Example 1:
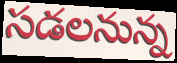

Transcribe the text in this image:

సడలనున్న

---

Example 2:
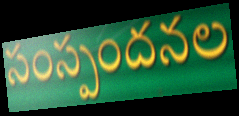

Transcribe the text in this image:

సంస్పందనల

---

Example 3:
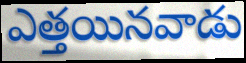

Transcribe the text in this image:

ఎత్తయినవాడు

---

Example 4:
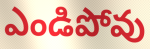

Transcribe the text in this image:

ఎండిపోవు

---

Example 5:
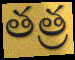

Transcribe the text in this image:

తత్ర